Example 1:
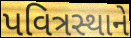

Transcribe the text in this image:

પવિત્રસ્થાને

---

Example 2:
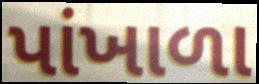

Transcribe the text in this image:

પાંખાળા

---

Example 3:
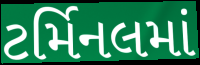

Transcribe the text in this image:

ટર્મિનલમાં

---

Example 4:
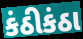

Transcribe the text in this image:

કંઠીકંઠા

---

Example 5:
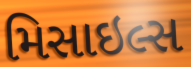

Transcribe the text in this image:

મિસાઇલ્સ